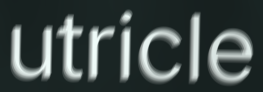
utricle